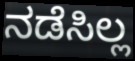
ನಡೆಸಿಲ್ಲ